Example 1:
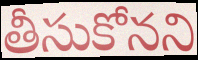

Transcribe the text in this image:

తీసుకోనని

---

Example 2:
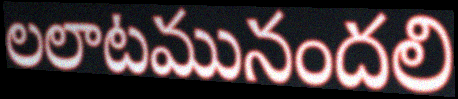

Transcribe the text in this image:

లలాటమునందలి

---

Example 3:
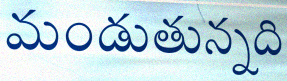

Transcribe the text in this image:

మండుతున్నది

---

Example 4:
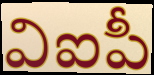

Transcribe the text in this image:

విఐపీ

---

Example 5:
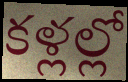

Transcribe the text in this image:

కళ్లల్లో